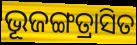
ଭୂଜଙ୍ଗତ୍ରାସିତ